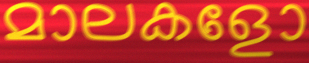
മാലകളോ